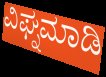
ವಿಘ್ನಮಾಡಿ